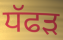
ਧੱਫੜ